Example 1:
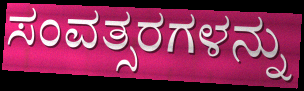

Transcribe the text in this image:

ಸಂವತ್ಸರಗಳನ್ನು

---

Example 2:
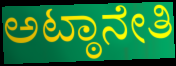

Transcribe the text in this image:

ಅಟ್ಠಾನೇತಿ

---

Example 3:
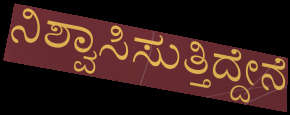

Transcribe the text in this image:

ನಿಶ್ವಾಸಿಸುತ್ತಿದ್ದೇನೆ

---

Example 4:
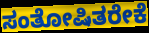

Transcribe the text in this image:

ಸಂತೋಷಿತರೇಕೆ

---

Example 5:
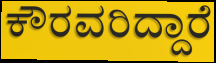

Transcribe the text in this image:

ಕೌರವರಿದ್ದಾರೆ